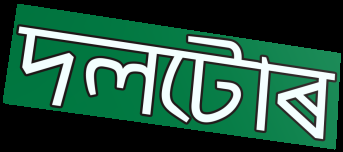
দলটোৰ